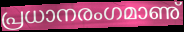
പ്രധാനരംഗമാണു്